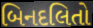
બિનદલિતો